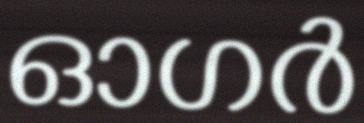
ഓഗർ